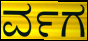
ರ್ವಗ